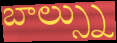
బాల్స్ను